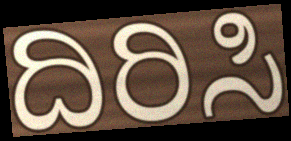
ದಿರಿಸಿ